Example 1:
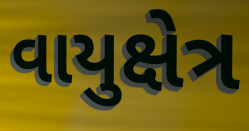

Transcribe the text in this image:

વાયુક્ષેત્ર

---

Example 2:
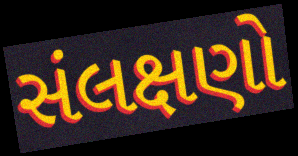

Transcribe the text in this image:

સંલક્ષણો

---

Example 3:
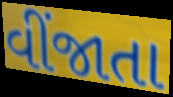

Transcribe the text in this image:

વીંજાતા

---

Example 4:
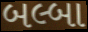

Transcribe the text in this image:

બલ્બા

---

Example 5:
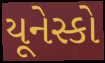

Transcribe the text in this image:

યૂનેસ્કો